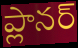
ప్లానర్